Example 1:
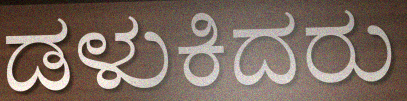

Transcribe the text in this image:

ಡಳುಕಿದರು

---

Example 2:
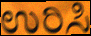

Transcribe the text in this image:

ಉರಿಸಿ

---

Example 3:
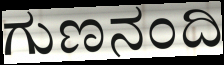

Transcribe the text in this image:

ಗುಣನಂದಿ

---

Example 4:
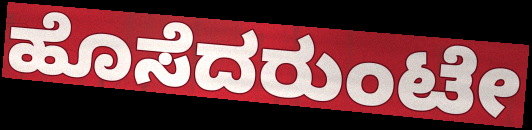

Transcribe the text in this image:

ಹೊಸೆದರುಂಟೇ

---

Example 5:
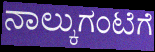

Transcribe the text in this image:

ನಾಲ್ಕುಗಂಟೆಗೆ